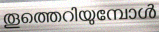
തൂത്തെറിയുമ്പോൾ